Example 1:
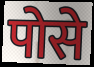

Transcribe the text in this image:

पोसे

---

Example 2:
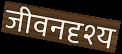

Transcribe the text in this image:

जीवनदृश्य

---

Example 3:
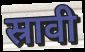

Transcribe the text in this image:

स्रावी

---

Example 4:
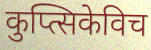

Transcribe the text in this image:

कुप्त्सिकेविच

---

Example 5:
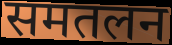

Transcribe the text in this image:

समतलन